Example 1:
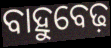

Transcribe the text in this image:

ବାହୁବେଢ଼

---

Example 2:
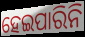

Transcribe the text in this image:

ହେଇପାରିନି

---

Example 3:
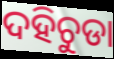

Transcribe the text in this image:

ଦହିଚୁଡା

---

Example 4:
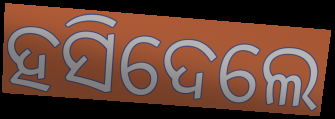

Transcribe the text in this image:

ହସିଦେଲେ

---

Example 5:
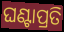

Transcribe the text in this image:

ଘଣ୍ଟାପ୍ରତି